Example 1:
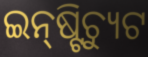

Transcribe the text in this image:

ଇନ୍‌ଷ୍ଟିଚ୍ୟୁଟ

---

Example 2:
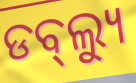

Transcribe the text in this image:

ଡବ୍‌ଲ୍ୟୁ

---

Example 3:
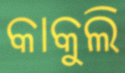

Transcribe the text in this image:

କାକୁଲି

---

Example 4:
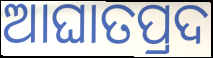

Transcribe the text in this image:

ଆଘାତପ୍ରଦ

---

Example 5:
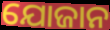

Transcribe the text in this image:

ଯୋଜାନ